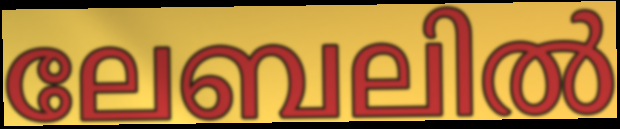
ലേബലിൽ